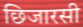
छिजारसी